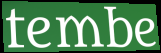
tembe